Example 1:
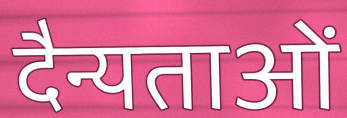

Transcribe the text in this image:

दैन्यताओं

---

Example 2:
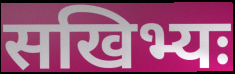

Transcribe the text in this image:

सखिभ्यः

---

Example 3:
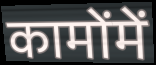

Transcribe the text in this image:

कामोंमें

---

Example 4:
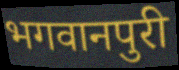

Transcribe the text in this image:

भगवानपुरी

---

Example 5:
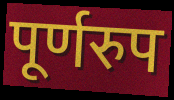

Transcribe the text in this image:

पूर्णरुप